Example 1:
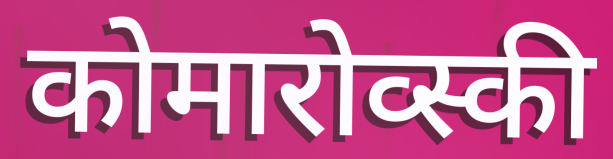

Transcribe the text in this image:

कोमारोव्स्की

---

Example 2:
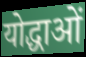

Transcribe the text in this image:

योद्धाओं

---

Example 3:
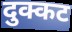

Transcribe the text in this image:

दुक्कट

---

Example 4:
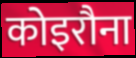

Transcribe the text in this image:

कोइरौना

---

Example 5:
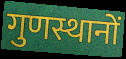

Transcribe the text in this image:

गुणस्थानों